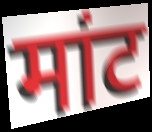
मांट